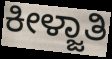
ಕೀಳ್ಜಾತಿ